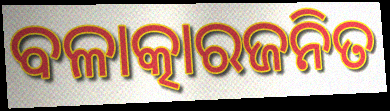
ବଳାତ୍କାରଜନିତ